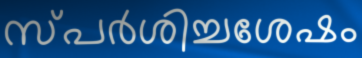
സ്പർശിച്ചശേഷം